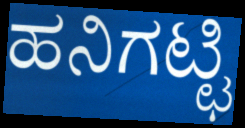
ಹನಿಗಟ್ಟಿ